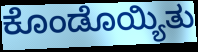
ಕೊಂಡೊಯ್ಯಿತು